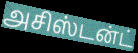
அசிஸ்டன்ட்